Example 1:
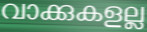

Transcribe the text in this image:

വാക്കുകളല്ല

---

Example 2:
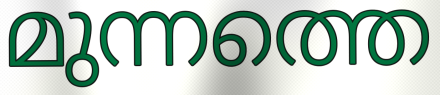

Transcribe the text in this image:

മുന്നത്തെ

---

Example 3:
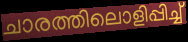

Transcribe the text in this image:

ചാരത്തിലൊളിപ്പിച്ച്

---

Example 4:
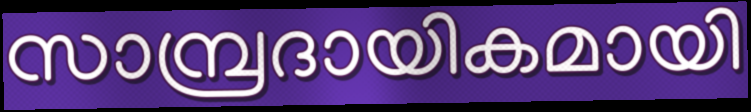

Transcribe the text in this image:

സാമ്പ്രദായികമായി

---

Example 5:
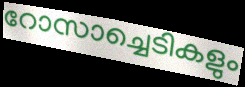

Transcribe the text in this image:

റോസാച്ചെടികളും